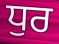
ਧੁਰ